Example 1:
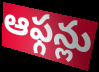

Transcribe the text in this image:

ఆఫ్గన్లు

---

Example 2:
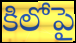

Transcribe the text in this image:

కిలోపై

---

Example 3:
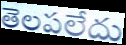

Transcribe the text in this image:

తెలపలేదు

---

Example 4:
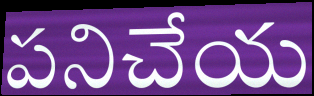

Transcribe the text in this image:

పనిచేయ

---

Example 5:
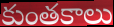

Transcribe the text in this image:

కుంతకాలు